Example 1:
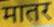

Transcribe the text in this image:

मातर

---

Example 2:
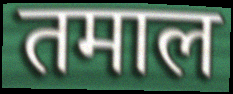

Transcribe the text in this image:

तमाल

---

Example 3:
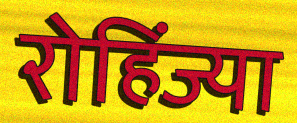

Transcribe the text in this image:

रोहिंज्या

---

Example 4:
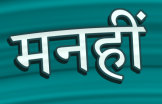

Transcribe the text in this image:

मनहीं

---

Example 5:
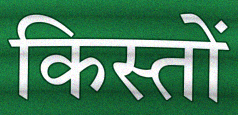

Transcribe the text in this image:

किस्तों